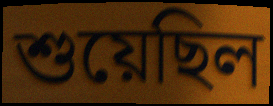
শুয়েছিল